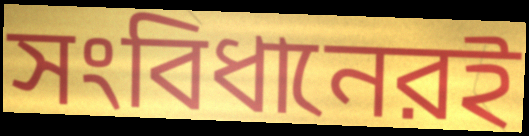
সংবিধানেরই